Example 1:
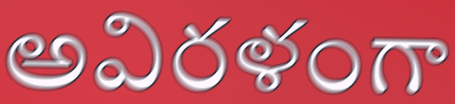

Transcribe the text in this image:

అవిరళంగా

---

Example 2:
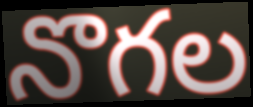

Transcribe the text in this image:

నొగల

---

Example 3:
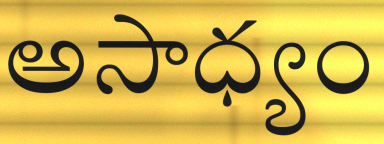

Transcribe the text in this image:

అసాధ్యం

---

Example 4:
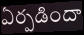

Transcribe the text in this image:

ఏర్పడిందా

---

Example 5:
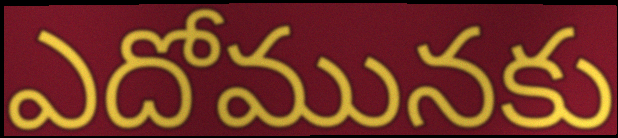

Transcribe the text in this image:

ఎదోమునకు